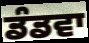
ਡੰਡਵਾ